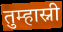
तुम्हास्नी